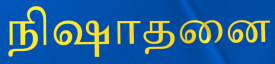
நிஷாதனை